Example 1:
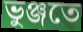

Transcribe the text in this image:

ভুঞ্জতে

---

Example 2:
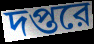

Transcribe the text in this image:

দপ্তরে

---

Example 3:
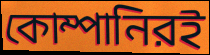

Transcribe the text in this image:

কোম্পানিরই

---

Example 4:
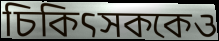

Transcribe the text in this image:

চিকিৎসককেও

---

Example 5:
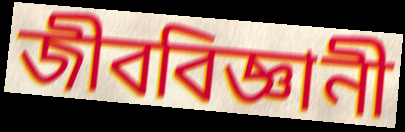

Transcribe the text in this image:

জীববিজ্ঞানী